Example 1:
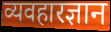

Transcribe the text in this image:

व्यवहारज्ञान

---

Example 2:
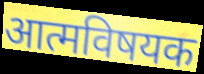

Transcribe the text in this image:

आत्मविषयक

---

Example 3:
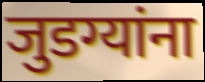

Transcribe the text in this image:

जुडग्यांना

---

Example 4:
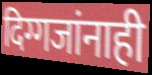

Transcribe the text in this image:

दिग्गजांनाही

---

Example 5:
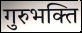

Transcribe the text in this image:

गुरुभक्ति